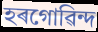
হৰগোৱিন্দ